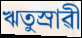
ঋতুস্ৰাৱী